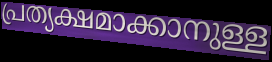
പ്രത്യക്ഷമാക്കാനുള്ള